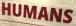
HUMANS